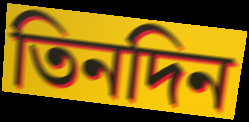
তিনদিন